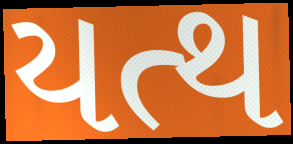
યત્થ